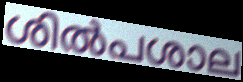
ശിൽപശാല